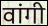
वांगी